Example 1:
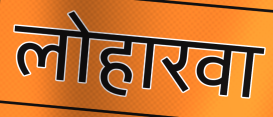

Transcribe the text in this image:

लोहारवा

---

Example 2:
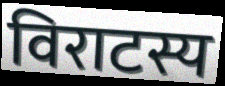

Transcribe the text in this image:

विराटस्य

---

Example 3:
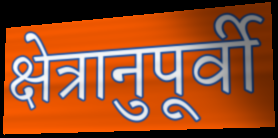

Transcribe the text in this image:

क्षेत्रानुपूर्वी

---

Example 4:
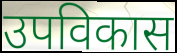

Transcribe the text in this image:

उपविकास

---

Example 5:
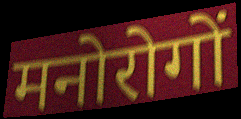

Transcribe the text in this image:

मनोरोगों